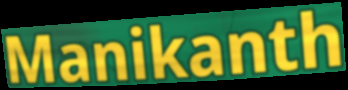
Manikanth